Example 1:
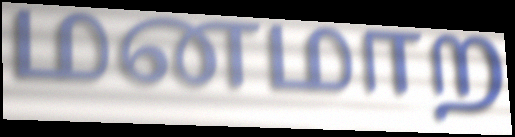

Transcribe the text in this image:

மனமாற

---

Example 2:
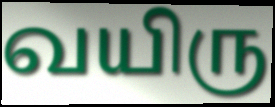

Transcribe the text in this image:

வயிரு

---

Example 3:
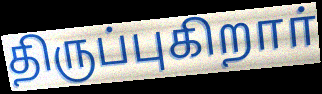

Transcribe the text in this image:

திருப்புகிறார்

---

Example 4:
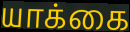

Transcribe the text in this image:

யாக்கை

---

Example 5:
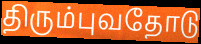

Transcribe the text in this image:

திரும்புவதோடு